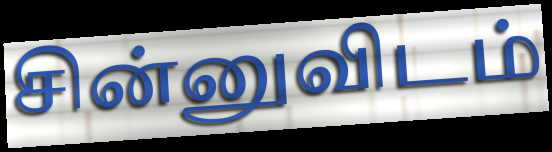
சின்னுவிடம்